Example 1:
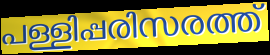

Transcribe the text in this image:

പള്ളിപ്പരിസരത്ത്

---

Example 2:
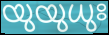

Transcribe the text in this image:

യുയുധുഃ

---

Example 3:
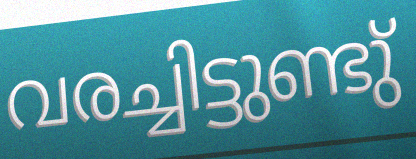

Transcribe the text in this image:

വരച്ചിട്ടുണ്ടു്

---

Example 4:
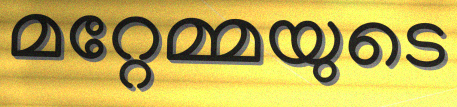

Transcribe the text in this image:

മറ്റേമ്മയുടെ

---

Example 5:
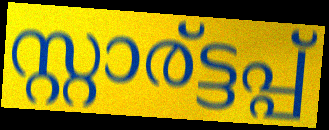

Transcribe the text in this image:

സ്റ്റാര്ട്ടപ്പ്